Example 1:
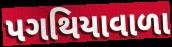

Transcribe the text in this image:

પગથિયાવાળા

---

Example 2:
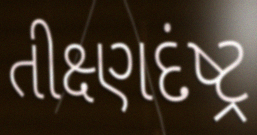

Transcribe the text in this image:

તીક્ષ્ણદંષ્ટ્ર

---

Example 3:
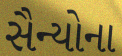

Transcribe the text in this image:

સૈન્યોના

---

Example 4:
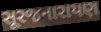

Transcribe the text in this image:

સૂરજનારાયણ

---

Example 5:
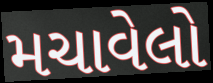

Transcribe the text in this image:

મચાવેલો